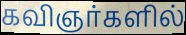
கவிஞர்களில்